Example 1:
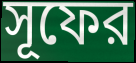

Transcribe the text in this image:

সূফের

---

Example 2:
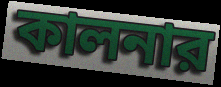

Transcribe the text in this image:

কালনার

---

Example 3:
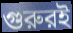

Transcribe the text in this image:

গুরুরই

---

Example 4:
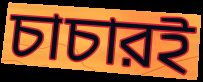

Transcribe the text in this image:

চাচারই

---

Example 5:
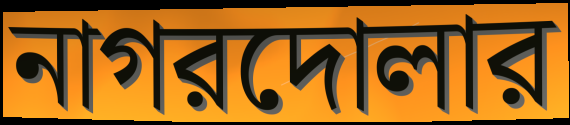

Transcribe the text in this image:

নাগরদোলার